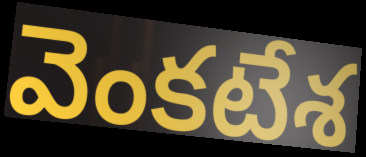
వెంకటేశ